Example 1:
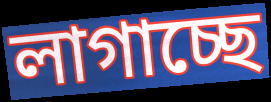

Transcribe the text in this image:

লাগাচ্ছে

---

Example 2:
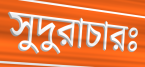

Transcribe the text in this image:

সুদুরাচারঃ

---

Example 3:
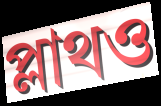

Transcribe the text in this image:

প্লাথও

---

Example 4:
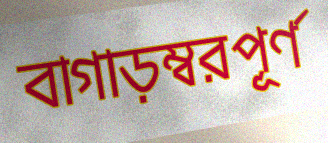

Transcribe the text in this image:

বাগাড়ম্বরপূর্ণ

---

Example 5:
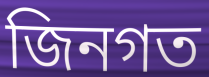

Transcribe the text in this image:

জিনগত